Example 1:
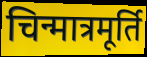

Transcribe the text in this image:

चिन्मात्रमूर्ति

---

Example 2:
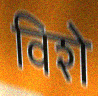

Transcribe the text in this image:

विशे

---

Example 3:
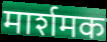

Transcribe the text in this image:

मार्शमक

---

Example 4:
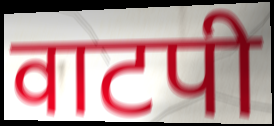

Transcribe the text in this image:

वाटपी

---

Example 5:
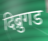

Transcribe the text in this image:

दिब्रुगड